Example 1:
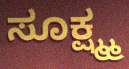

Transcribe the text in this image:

ಸೂಕ್ಷ್ಮ್ಮ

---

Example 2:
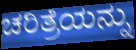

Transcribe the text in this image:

ಚರಿತ್ರೆಯನ್ನು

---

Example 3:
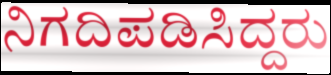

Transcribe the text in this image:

ನಿಗದಿಪಡಿಸಿದ್ದರು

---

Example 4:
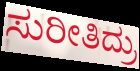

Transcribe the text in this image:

ಸುರೀತಿದ್ರು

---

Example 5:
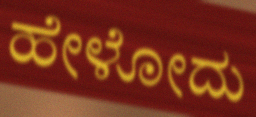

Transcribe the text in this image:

ಹೇಳೋದು